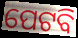
ପେଟବି